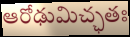
ఆరోఢుమిచ్ఛతః